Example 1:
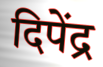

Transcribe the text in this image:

दिपेंद्र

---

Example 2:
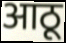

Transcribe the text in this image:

आठू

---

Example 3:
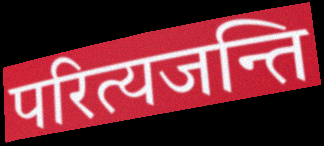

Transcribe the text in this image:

परित्यजन्ति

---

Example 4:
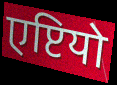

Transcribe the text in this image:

एप्टियो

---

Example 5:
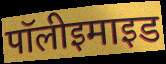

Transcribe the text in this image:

पॉलीइमाइड